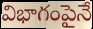
విభాగంపైనే